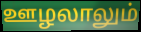
ஊழலாலும்